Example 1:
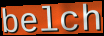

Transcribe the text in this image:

belch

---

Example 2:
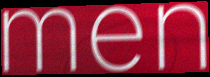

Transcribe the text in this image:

men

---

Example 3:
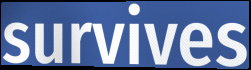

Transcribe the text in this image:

survives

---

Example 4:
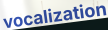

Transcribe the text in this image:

vocalization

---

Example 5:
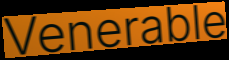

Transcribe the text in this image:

Venerable